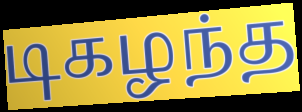
டிகழந்த